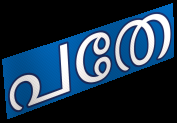
പതേ